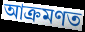
আক্ৰমণত